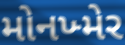
મોનખ્મેર